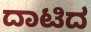
ದಾಟಿದ